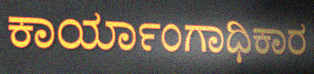
ಕಾರ್ಯಾಂಗಾಧಿಕಾರ